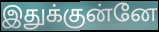
இதுக்குன்னே